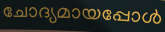
ചോദ്യമായപ്പോൾ